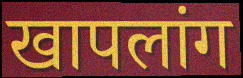
खापलांग